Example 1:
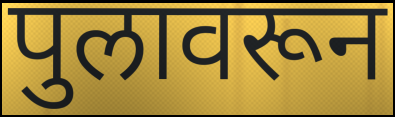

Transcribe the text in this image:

पुलावरून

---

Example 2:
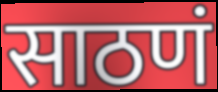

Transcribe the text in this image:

साठणं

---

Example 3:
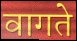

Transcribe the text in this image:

वागते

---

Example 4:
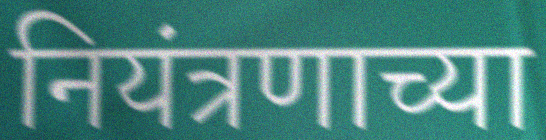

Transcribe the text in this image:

नियंत्रणाच्या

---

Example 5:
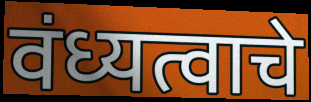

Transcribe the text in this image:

वंध्यत्वाचे